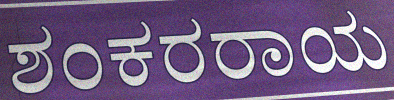
ಶಂಕರರಾಯ